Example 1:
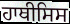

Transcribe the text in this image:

ਹਾਥੀਸਿਸ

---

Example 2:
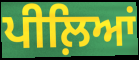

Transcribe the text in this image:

ਪੀਲ਼ਿਆਂ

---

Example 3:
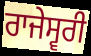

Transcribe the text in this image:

ਰਾਜੇਸ੍ਵਰੀ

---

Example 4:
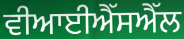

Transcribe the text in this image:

ਵੀਆਈਐੱਸਐੱਲ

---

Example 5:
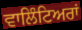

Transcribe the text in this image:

ਵਾਲਿੰਟਿਅਰਾਂ